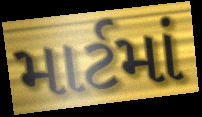
માર્ટમાં